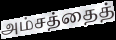
அம்சத்தைத்